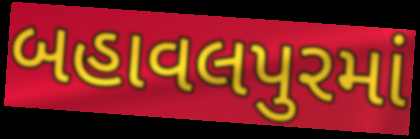
બહાવલપુરમાં